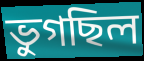
ভুগছিল